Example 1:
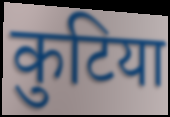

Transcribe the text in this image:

कुटिया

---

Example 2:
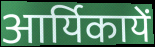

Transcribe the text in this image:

आर्यिकायें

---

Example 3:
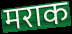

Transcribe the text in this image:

मराक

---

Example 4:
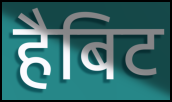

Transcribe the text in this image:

हैबिट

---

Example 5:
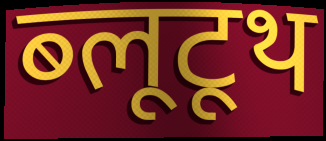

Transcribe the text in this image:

ब्‍लूटूथ